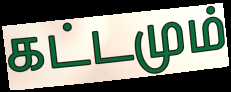
கட்டமும்